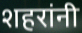
शहरांनी